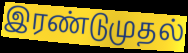
இரண்டுமுதல்